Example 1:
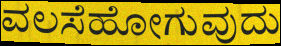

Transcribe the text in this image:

ವಲಸೆಹೋಗುವುದು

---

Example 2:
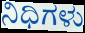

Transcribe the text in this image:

ನಿಧಿಗಳು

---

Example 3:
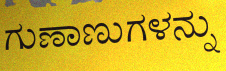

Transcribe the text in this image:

ಗುಣಾಣುಗಳನ್ನು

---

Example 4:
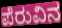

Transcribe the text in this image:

ಪೆರುವಿನ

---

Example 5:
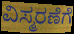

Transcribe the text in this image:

ವಿಸ್ಮರಣೆಗೆ